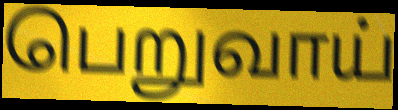
பெறுவாய்